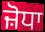
ਜ਼ੋਧਾ